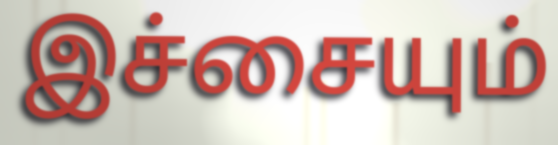
இச்சையும்